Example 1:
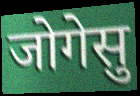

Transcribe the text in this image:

जोगेसु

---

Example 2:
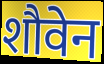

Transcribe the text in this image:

शौवेन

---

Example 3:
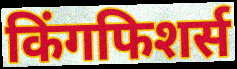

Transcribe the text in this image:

किंगफिशर्स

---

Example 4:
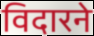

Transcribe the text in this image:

विदारने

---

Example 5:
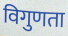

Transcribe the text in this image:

विगुणता